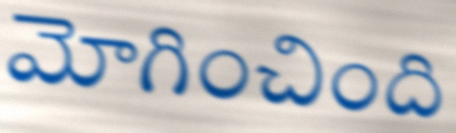
మోగించింది